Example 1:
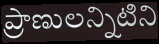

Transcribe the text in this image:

ప్రాణులన్నిటిని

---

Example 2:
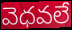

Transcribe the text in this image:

వెధవలే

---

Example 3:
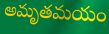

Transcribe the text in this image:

అమృతమయం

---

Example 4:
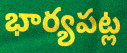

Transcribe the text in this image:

భార్యపట్ల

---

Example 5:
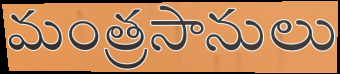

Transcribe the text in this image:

మంత్రసానులు